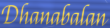
Dhanabalan